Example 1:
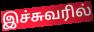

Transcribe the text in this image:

இச்சுவரில்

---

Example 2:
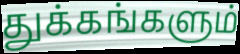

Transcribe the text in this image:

துக்கங்களும்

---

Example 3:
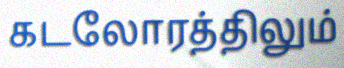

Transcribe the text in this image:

கடலோரத்திலும்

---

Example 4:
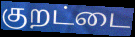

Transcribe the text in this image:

குறட்டை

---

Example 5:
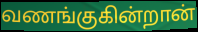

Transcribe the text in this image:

வணங்குகின்றான்